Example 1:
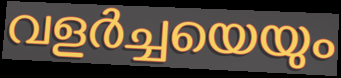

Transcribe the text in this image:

വളർച്ചയെയും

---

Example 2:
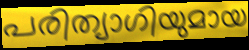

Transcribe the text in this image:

പരിത്യാഗിയുമായ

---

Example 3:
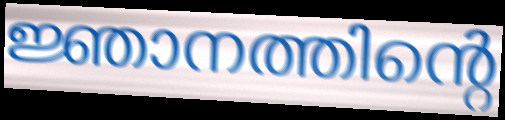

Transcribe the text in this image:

ജ്ഞാനത്തിന്റെ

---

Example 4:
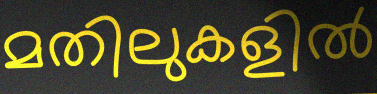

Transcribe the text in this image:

മതിലുകളിൽ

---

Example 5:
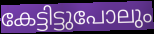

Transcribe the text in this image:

കേട്ടിട്ടുപോലും